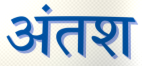
अंतश